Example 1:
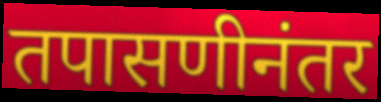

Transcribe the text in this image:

तपासणीनंतर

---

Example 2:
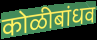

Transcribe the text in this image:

कोळीबांधव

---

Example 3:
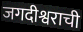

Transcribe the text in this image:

जगदीश्वराची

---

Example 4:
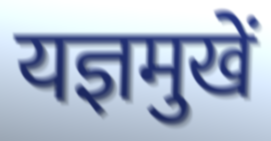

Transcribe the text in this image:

यज्ञमुखें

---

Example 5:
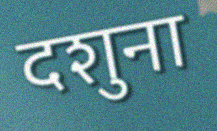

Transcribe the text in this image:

दशुना